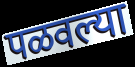
पळवल्या